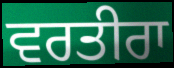
ਵਰਤੀਰਾ